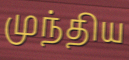
முந்திய